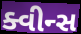
ક્વીન્સ